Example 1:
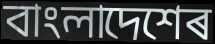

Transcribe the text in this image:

বাংলাদেশেৰ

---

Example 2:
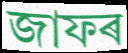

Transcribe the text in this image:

জাফৰ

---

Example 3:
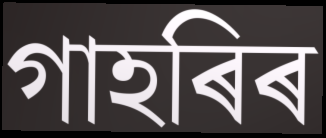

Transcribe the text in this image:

গাহৰিৰ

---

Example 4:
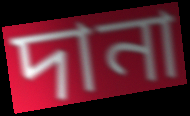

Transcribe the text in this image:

দানা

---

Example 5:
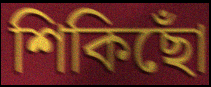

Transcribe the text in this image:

শিকিছোঁ